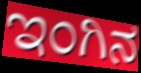
ಇಂಗಿನ